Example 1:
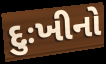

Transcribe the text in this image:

દુઃખીનો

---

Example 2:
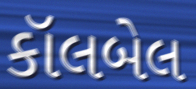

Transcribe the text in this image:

કૉલબેલ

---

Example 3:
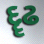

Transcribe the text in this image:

દૄઢ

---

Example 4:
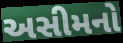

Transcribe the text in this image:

અસીમનો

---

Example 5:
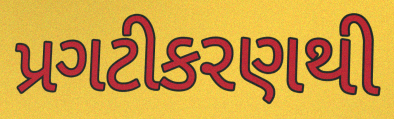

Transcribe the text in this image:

પ્રગટીકરણથી